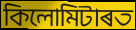
কিলোমিটাৰত